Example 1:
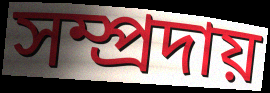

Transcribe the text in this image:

সম্প্ৰদায়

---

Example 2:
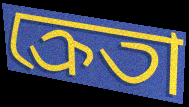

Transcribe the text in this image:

ক্ৰেতা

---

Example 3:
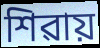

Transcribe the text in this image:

শিৱায়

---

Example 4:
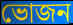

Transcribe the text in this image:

ভোজন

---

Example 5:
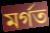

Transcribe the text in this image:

মৰ্গত